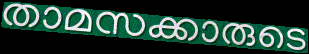
താമസക്കാരുടെ